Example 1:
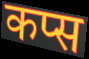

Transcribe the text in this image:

कप्स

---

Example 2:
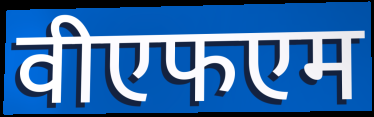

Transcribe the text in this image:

वीएफएम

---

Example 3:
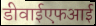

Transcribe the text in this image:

डीवाईएफआई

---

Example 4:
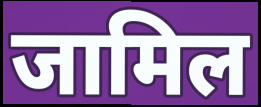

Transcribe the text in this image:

जामिल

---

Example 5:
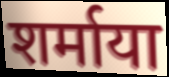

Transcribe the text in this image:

शर्माया